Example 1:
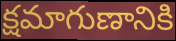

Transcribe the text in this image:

క్షమాగుణానికి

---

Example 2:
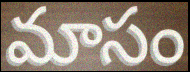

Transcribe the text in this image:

మాసం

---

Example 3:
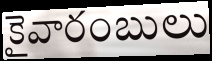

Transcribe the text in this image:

కైవారంబులు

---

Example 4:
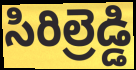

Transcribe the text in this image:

సిరిల్రెడ్డి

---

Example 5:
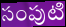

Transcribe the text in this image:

సంపుటి